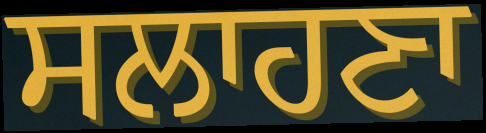
ਸਲਾਹਣਾ